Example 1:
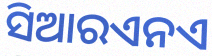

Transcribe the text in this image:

ସିଆରଏନଏ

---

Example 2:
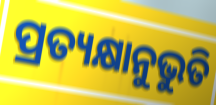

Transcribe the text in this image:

ପ୍ରତ୍ୟକ୍ଷାନୁଭୁତି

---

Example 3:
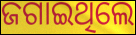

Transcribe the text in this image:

ଜଗାଇଥିଲେ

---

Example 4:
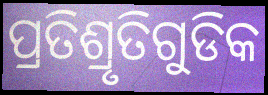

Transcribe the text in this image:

ପ୍ରତିଶ୍ରୃତିଗୁଡିକ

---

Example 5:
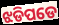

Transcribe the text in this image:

ଝଡିପଡେ